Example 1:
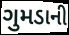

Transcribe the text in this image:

ગુમડાની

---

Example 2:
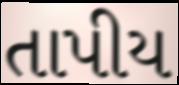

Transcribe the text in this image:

તાપીય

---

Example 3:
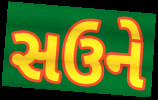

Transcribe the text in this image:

સઉને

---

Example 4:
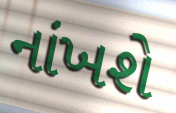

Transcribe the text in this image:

નાંખશે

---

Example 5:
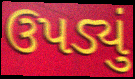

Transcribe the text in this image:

ઉપડ્યું